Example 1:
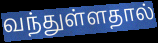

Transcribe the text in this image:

வந்துள்ளதால்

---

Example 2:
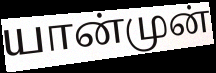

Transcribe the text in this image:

யான்முன்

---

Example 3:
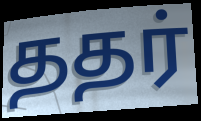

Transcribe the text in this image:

ததர்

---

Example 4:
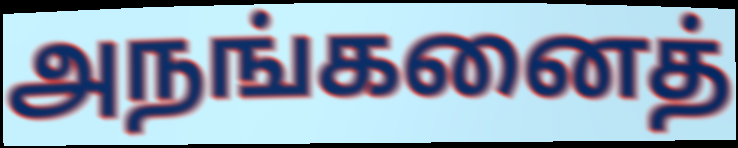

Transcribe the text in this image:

அநங்கனைத்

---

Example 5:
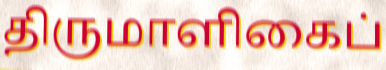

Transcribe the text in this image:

திருமாளிகைப்